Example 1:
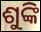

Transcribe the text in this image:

ଶୁଙ୍କି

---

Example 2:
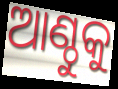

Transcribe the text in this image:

ଆଣ୍ଠୁକୁ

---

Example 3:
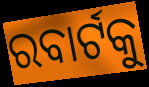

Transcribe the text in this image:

ରବାର୍ଟକୁ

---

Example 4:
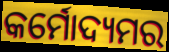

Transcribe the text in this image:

କର୍ମୋଦ୍ୟମର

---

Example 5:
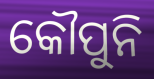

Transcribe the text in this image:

କୌପୁନି